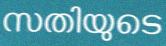
സതിയുടെ